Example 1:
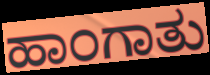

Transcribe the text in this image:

ಹಾಂಗಾತು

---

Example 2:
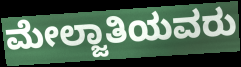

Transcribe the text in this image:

ಮೇಲ್ಜಾತಿಯವರು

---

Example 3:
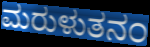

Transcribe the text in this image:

ಮರುಳುತನಂ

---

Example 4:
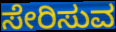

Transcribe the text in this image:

ಸೇರಿಸುವ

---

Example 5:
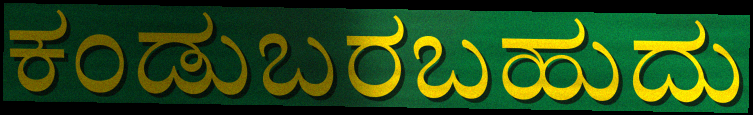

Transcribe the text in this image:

ಕಂಡುಬರಬಹುದು